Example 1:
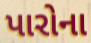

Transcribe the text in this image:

પારોના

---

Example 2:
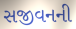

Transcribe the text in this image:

સજીવનની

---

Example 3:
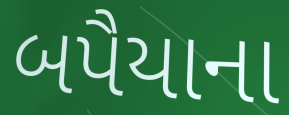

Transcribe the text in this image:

બપૈયાના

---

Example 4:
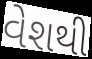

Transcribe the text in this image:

વેશથી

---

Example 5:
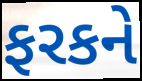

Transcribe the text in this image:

ફરકને